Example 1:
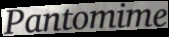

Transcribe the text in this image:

Pantomime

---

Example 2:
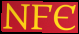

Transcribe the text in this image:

NFE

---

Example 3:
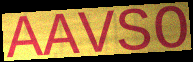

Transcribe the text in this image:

AAVSO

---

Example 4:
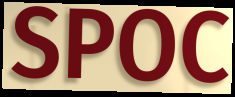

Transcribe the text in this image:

SPOC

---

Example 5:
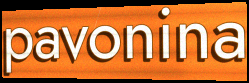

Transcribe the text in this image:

pavonina